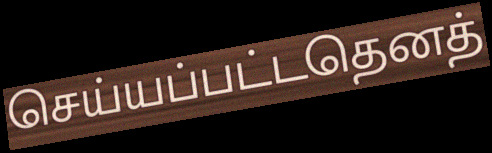
செய்யப்பட்டதெனத்